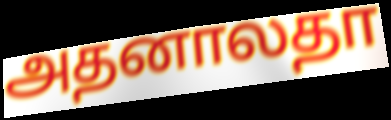
அதனாலதா